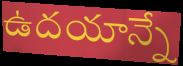
ఉదయాన్నే